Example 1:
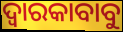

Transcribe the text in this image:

ଦ୍ୱାରକାବାବୁ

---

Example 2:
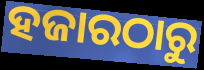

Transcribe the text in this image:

ହଜାରଠାରୁ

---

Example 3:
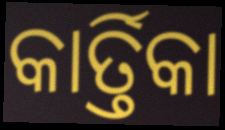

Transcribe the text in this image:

କାର୍ତ୍ତିକା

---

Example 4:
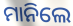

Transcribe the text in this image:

ମାନିଲେ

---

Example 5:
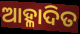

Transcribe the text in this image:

ଆହ୍ଳାଦିତ